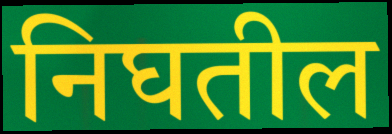
निघतील